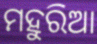
ମହୁରିଆ